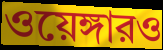
ওয়েঙ্গারও